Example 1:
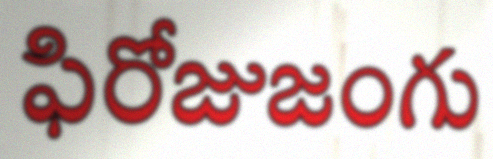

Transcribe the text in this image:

ఫిరోజుజంగు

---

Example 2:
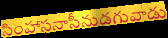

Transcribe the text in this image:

సింహాసనాసీనుడగువాడు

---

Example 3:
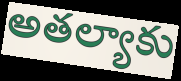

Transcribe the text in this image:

అతల్యాకు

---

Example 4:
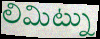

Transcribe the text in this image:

లిమిట్ను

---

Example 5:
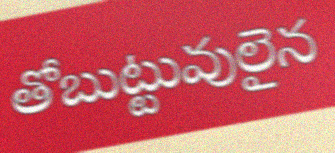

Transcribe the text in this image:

తోబుట్టువులైన